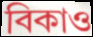
বিকাও